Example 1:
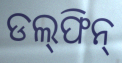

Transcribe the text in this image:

ଡଲ୍‍ଫିନ୍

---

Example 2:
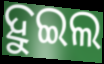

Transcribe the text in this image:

ହୁଇଲ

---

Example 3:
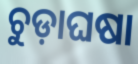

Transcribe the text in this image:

ଚୁଡ଼ାଘଷା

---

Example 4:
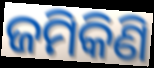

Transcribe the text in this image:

ଜମିକିଣି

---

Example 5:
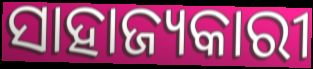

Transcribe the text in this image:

ସାହାଜ୍ଯକାରୀ